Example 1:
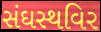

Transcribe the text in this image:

સંઘસ્થવિર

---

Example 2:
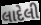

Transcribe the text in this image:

લાદેલી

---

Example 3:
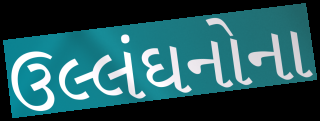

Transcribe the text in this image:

ઉલ્લંઘનોના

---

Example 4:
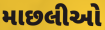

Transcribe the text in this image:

માછલીઓ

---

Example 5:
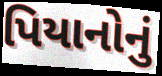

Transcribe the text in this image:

પિયાનોનું